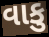
વાકુ